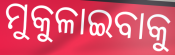
ମୁକୁଳାଇବାକୁ